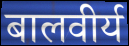
बालवीर्य